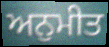
ਅਨੁਮੀਤ